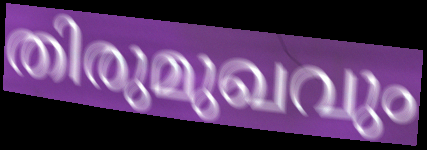
തിരുമുഖവും